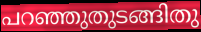
പറഞ്ഞുതുടങ്ങിതു